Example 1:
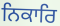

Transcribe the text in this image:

ਨਿਕਾਰਿ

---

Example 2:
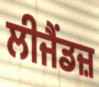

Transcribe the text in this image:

ਲੀਜੈਂਡਜ਼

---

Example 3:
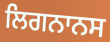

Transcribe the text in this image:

ਲਿਗਨਾਨਸ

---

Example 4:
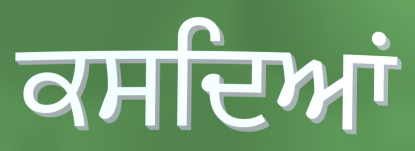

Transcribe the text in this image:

ਕਸਦਿਆਂ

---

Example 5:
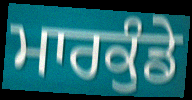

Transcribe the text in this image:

ਮਾਰਕੁੰਡੇ